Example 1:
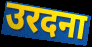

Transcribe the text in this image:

उरदना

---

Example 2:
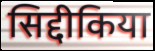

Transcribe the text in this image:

सिद्दीकिया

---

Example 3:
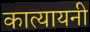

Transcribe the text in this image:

कात्यायनी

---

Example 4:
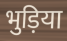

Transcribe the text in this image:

भुड़िया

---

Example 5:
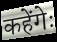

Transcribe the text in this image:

कहेंगेः